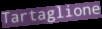
Tartaglione